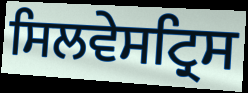
ਸਿਲਵੇਸਟ੍ਰਿਸ